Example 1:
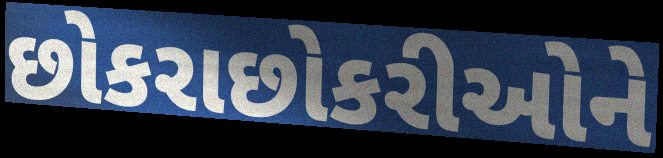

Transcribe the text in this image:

છોકરાછોકરીઓને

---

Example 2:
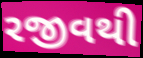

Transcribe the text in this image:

રજીવથી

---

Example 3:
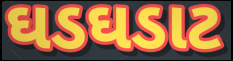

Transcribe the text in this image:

ઘડઘડાટ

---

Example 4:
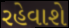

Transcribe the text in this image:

રહેવાશે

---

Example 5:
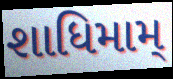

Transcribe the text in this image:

શાધિમામ્